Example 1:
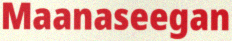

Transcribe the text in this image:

Maanaseegan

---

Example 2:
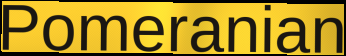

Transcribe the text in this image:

Pomeranian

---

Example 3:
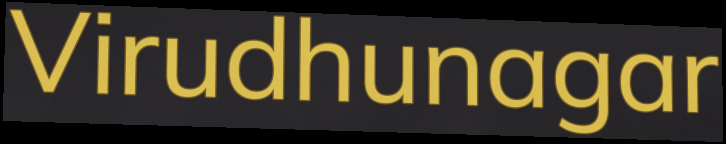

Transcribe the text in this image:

Virudhunagar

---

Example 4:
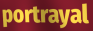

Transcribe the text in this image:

portrayal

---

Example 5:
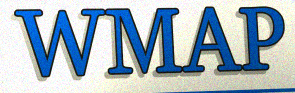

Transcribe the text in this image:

WMAP